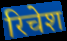
रिचेश